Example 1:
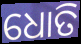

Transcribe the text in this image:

ଧୋତି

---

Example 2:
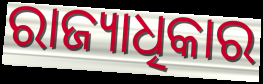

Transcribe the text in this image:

ରାଜ୍ୟାଧିକାର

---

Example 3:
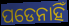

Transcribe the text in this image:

ପଡେନାହିଁ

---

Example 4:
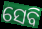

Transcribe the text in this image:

ସେବି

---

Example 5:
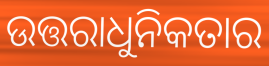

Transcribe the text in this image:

ଉତ୍ତରାଧୁନିକତାର